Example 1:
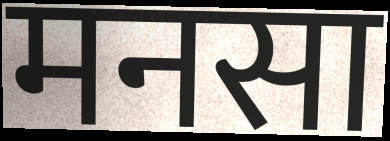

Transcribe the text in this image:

मनसा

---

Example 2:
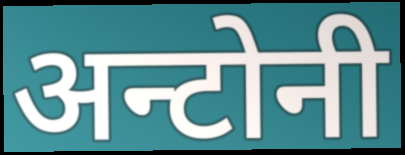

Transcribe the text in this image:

अन्टोनी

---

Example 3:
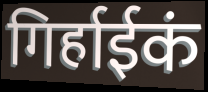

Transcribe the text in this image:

गिर्हाईकं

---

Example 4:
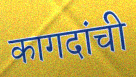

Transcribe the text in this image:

कागदांची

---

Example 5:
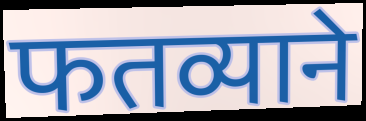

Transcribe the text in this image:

फतव्याने